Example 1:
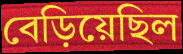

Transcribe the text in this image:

বেড়িয়েছিল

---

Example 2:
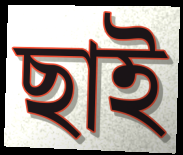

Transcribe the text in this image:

ছাই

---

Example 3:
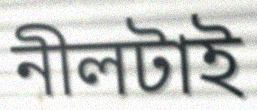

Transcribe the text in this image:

নীলটাই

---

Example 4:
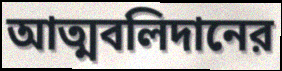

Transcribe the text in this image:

আত্মবলিদানের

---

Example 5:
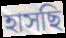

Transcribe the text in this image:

হাসছি